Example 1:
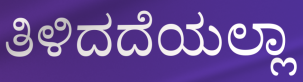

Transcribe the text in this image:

ತಿಳಿದದೆಯಲ್ಲಾ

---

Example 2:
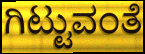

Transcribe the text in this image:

ಗಿಟ್ಟುವಂತೆ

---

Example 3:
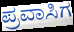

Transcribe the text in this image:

ಪ್ರವಾಸಿಗ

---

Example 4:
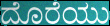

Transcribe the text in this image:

ದೊರೆಯು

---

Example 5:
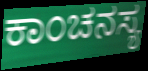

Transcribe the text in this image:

ಕಾಂಚನಸ್ಯ